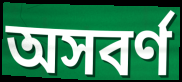
অসবর্ণ